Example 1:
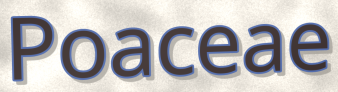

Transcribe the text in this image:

Poaceae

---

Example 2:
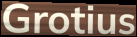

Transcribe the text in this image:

Grotius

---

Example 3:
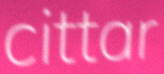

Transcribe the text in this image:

cittar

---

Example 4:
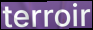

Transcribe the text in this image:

terroir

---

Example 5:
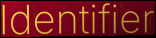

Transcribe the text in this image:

Identifier